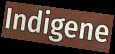
Indigene